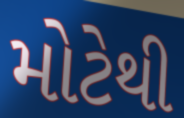
મોટેથી